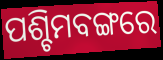
ପଶ୍ଚିମବଙ୍ଗରେ